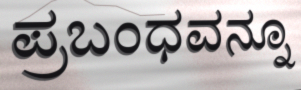
ಪ್ರಬಂಧವನ್ನೂ